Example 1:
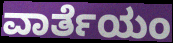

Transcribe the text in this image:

ವಾರ್ತೆಯಂ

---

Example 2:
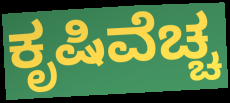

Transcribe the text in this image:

ಕೃಷಿವೆಚ್ಚ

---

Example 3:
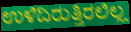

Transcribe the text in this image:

ಉಳಿದಿರುತ್ತಿರಲಿಲ್ಲ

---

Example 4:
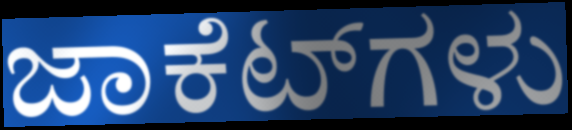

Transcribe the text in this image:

ಜಾಕೆಟ್‌ಗಳು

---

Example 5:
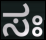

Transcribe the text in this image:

ಸಃ